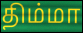
திம்மா